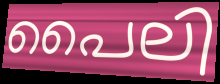
പൈലി